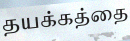
தயக்கத்தை